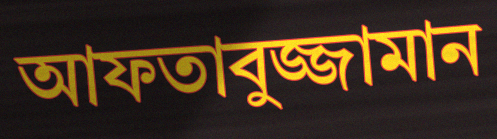
আফতাবুজ্জামান